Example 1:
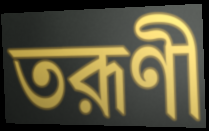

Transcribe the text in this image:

তরূণী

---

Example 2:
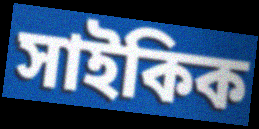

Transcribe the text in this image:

সাইকিক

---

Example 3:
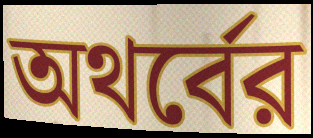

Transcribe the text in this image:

অথর্বের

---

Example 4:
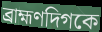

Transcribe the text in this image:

ব্রাহ্মণদিগকে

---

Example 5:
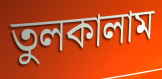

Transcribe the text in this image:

তুলকালাম